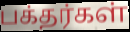
பக்தர்கள்